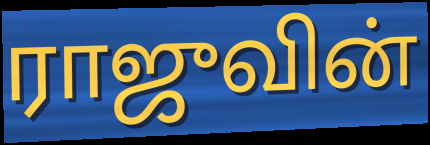
ராஜுவின்